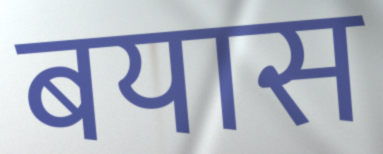
बयास